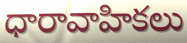
ధారావాహికలు